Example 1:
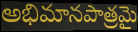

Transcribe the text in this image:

అభిమానపాత్రమై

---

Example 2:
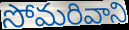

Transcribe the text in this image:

సోమరివాని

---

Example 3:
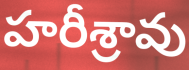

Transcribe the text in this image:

హరీశ్రావు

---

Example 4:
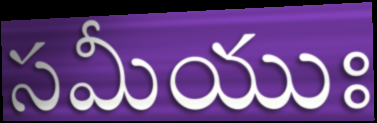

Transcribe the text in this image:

సమీయుః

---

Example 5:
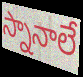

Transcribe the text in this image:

స్నానాలే